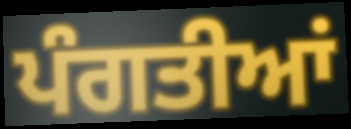
ਪੰਗਤੀਆਂ